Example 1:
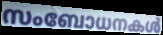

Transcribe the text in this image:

സംബോധനകൾ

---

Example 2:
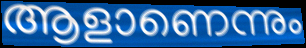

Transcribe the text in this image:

ആളാണെന്നും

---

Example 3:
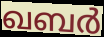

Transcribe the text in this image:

ഖബർ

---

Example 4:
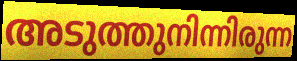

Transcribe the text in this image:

അടുത്തുനിന്നിരുന്ന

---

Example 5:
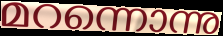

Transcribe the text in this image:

മറന്നൊന്നു